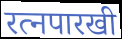
रत्नपारखी